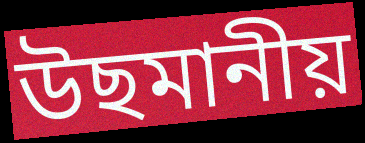
উছমানীয়